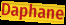
Daphane